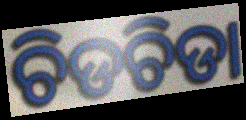
ଚିଡଚିଡା